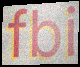
fbi